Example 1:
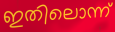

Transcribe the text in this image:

ഇതിലൊന്ന്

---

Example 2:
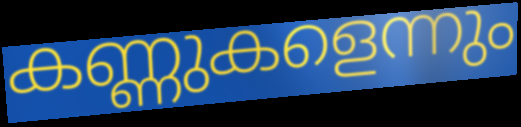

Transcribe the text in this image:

കണ്ണുകളെന്നും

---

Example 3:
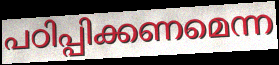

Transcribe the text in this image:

പഠിപ്പിക്കണമെന്ന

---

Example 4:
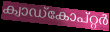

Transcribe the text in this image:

ക്വാഡ്കോപ്റ്റർ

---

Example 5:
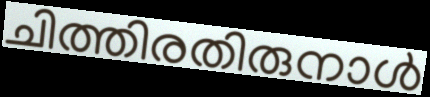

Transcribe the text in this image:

ചിത്തിരതിരുനാൾ